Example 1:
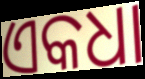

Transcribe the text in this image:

ଏକଧା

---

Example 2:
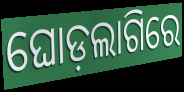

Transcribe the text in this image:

ଘୋଡ଼ଲାଗିରେ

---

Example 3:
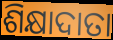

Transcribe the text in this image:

ଶିକ୍ଷାଦାତା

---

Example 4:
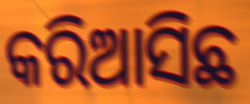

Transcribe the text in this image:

କରିଆସିଛ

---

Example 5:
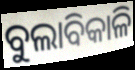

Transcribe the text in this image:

ବୁଲାବିକାଳି